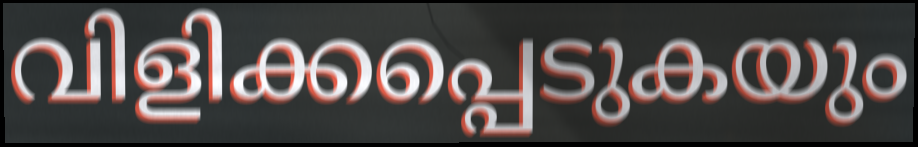
വിളിക്കപ്പെടുകയും